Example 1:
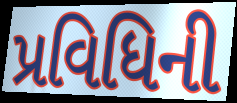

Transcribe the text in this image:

પ્રવિધિની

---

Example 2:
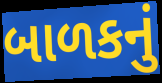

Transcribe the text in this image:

બાળકનું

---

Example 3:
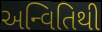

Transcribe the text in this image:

અન્વિતિથી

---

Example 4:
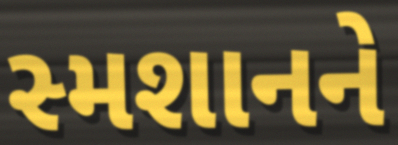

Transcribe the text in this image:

સ્મશાનને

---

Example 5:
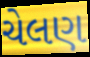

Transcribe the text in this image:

ચેલણ